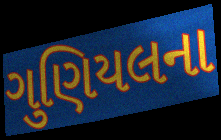
ગુણિયલના